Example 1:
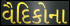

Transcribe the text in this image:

વૈદિકોના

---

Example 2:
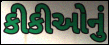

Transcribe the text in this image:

કીકીઓનું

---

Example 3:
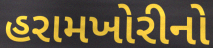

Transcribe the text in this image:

હરામખોરીનો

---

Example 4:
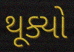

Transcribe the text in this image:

થૂક્યો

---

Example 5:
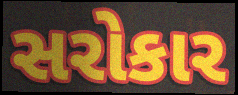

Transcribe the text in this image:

સરોકાર